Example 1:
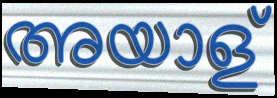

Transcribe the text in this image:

അയാള്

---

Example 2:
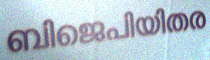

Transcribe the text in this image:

ബിജെപിയിതര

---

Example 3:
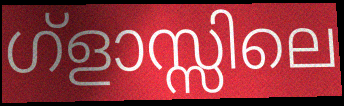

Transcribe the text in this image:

ഗ്ളാസ്സിലെ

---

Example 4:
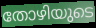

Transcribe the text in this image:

തോഴിയുടെ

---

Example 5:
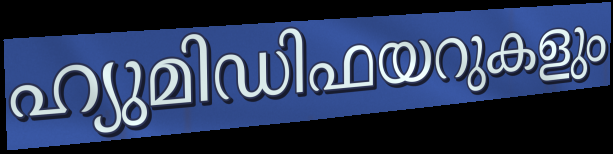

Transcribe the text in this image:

ഹ്യുമിഡിഫയറുകളും